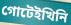
গোটেইখিনি